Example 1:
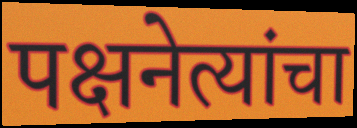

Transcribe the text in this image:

पक्षनेत्यांचा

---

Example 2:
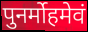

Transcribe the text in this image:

पुनर्मोहमेवं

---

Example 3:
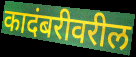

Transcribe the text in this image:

कादंबरीवरील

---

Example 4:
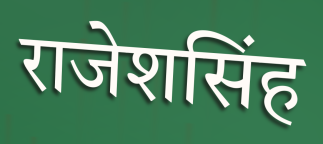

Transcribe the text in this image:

राजेशसिंह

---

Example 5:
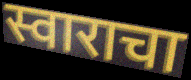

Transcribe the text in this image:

स्वाराचा